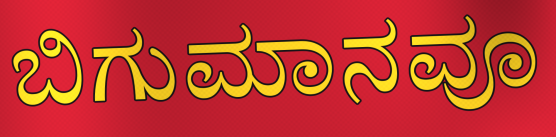
ಬಿಗುಮಾನವೂ